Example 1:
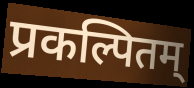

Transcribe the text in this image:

प्रकल्पितम्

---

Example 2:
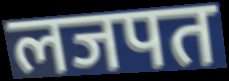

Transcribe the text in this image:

लजपत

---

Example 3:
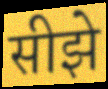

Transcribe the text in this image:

सीझे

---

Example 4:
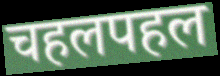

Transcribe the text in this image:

चहलपहल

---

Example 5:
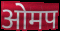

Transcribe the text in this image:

ओमप